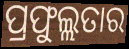
ପ୍ରଫୁଲ୍ଲତାର